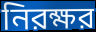
নিরক্ষর